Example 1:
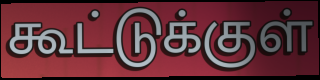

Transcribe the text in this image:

கூட்டுக்குள்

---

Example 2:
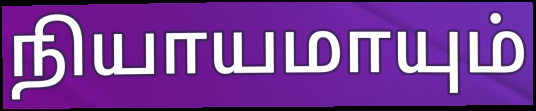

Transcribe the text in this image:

நியாயமாயும்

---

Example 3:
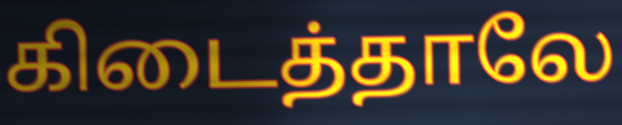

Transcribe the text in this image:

கிடைத்தாலே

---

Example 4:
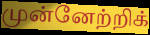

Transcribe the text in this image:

முன்னேற்றிக்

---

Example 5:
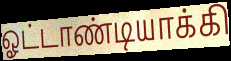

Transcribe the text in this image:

ஓட்டாண்டியாக்கி